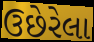
ઉછેરેલા